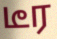
டீர